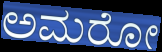
ಅಮರೋ